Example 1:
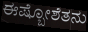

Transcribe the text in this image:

ಈಷ್ಬೋಶೆತನು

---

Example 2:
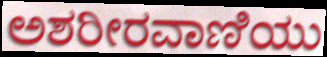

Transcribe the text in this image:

ಅಶರೀರವಾಣಿಯು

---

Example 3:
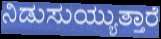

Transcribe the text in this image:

ನಿಡುಸುಯ್ಯುತ್ತಾರೆ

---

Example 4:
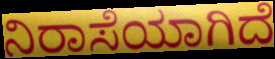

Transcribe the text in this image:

ನಿರಾಸೆಯಾಗಿದೆ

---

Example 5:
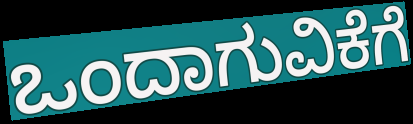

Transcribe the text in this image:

ಒಂದಾಗುವಿಕೆಗೆ